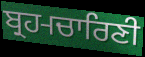
ਬ੍ਰਹ੍ਮਚਾਰਿਣੀ